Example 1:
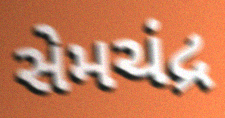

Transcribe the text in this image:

સેમચંદ્ર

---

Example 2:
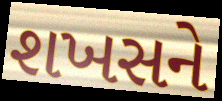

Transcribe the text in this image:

શખસને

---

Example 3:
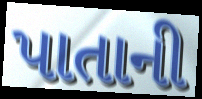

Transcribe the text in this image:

પાતાની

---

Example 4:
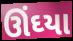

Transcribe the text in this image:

ઊંઘ્યા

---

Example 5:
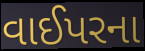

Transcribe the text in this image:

વાઈપરના